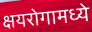
क्षयरोगामध्ये